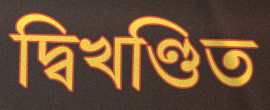
দ্বিখণ্ডিত